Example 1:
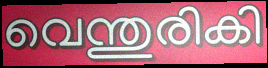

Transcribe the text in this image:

വെന്തുരികി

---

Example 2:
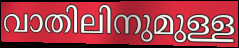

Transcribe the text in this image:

വാതിലിനുമുള്ള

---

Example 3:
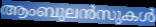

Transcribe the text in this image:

ആംബുലൻസുകൾ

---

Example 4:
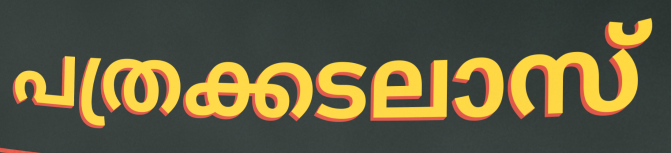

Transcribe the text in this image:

പത്രക്കടലാസ്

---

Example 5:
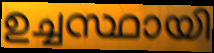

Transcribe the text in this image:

ഉച്ചസ്ഥായി